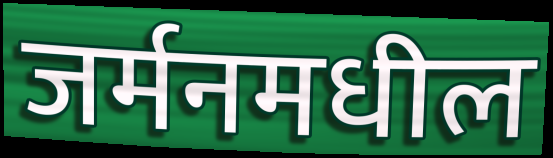
जर्मनमधील